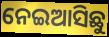
ନେଇଆସିଛୁ